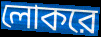
লোকরে